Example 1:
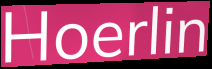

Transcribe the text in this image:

Hoerlin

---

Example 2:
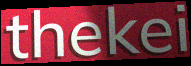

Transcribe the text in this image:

thekei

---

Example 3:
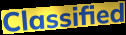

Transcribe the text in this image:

Classified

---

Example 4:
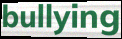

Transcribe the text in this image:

bullying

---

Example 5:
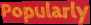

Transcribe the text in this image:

Popularly